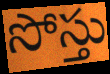
సోస్తు